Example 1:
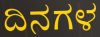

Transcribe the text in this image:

ದಿನಗಳ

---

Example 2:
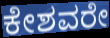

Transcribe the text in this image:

ಕೇಶವರೇ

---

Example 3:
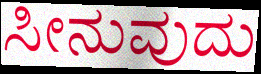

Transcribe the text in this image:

ಸೀನುವುದು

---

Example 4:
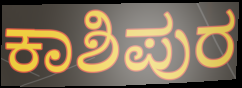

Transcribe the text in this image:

ಕಾಶಿಪುರ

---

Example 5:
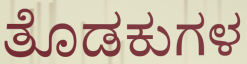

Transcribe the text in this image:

ತೊಡಕುಗಳ